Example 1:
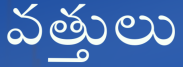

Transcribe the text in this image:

వత్తులు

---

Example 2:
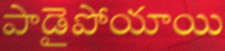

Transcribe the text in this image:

పాడైపోయాయి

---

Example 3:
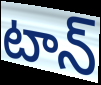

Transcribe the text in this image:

టాన్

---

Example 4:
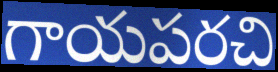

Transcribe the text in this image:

గాయపరచి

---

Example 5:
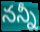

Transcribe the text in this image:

నన్నీ